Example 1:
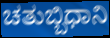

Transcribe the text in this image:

ಚತುಬ್ಬಿಧಾನಿ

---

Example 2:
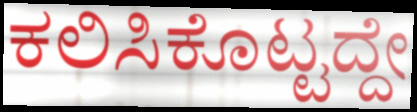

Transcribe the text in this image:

ಕಲಿಸಿಕೊಟ್ಟದ್ದೇ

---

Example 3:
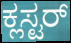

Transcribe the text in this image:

ಕ್ಲಸ್ಟರ್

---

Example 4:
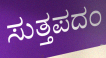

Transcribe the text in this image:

ಸುತ್ತಪದಂ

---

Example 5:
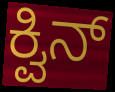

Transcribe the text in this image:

ಕ್ವಿನ್